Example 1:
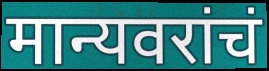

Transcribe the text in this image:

मान्यवरांचं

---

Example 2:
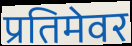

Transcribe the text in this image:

प्रतिमेवर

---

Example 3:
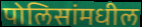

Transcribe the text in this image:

पोलिसांमधील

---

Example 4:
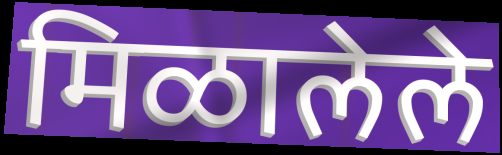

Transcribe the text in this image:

मिळालेले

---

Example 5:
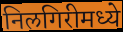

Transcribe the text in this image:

निलगिरीमध्ये